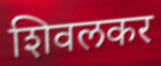
शिवलकर